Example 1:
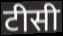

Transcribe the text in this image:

टीसी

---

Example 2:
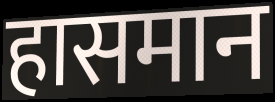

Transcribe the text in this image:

हासमान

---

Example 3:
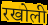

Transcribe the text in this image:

रखोली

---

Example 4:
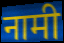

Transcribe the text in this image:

नामी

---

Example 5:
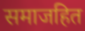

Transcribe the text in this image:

समाजहित